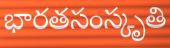
భారతసంస్కృతి